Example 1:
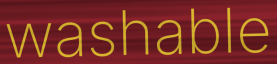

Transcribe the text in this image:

washable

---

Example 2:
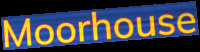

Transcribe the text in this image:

Moorhouse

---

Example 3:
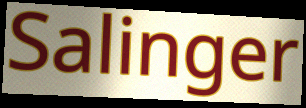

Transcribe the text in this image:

Salinger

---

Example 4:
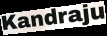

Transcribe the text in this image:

Kandraju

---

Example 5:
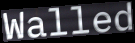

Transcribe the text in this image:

Walled